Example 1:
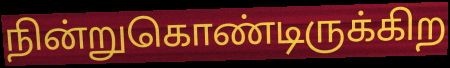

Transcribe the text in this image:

நின்றுகொண்டிருக்கிற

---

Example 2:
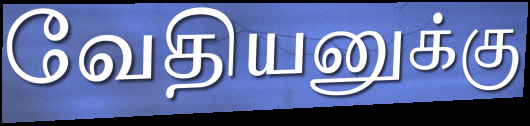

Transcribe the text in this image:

வேதியனுக்கு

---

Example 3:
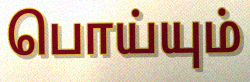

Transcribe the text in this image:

பொய்யும்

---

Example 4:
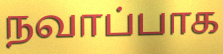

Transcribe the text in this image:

நவாப்பாக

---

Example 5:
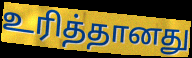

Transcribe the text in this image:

உரித்தானது